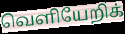
வெளியேறிக்